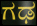
ಗಢ